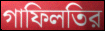
গাফিলতির